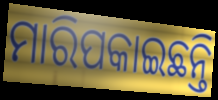
ମାରିପକାଇଛନ୍ତି